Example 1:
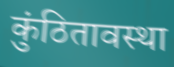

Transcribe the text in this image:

कुंठितावस्था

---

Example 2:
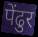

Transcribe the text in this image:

पेंढुर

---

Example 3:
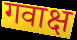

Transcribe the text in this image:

गवाक्ष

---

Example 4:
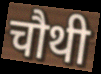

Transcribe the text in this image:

चौथी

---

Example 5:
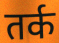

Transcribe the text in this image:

तर्क